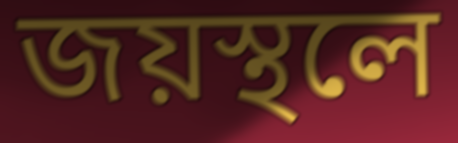
জয়স্থলে